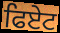
ਫਿਏਟ